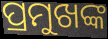
ପ୍ରମୁଖଙ୍କ